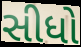
સીધો